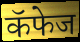
कॅफेज